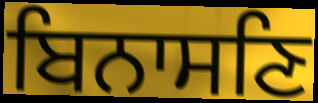
ਬਿਨਾਸਣਿ